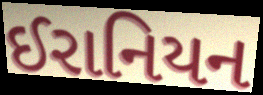
ઈરાનિયન